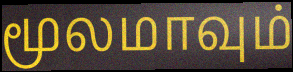
மூலமாவும்